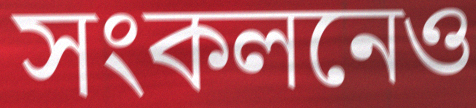
সংকলনেও